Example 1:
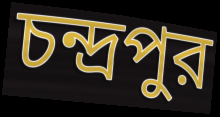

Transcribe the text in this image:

চন্দ্রপুর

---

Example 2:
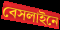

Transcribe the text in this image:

বেসলাইনে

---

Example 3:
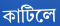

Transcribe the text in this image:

কাটিলে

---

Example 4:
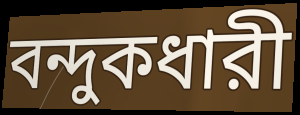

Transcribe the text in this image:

বন্দুকধারী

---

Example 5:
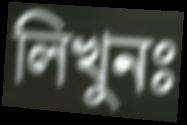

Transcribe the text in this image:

লিখুনঃ